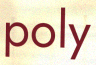
poly